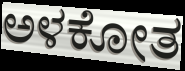
ಅಳಕೋತ